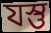
যস্তু